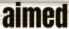
aimed